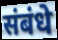
संबंधे